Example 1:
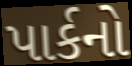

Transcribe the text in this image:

પાર્કનો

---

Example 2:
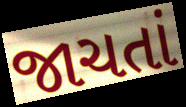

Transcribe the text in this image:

જાચતાં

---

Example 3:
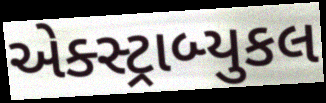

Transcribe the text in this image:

એક્સ્ટ્રાબ્યુકલ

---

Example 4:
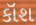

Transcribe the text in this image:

કૉશ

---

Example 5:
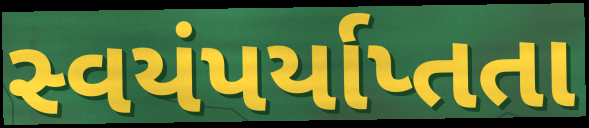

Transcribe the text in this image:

સ્વયંપર્યાપ્તતા